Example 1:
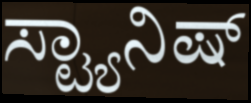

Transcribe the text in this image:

ಸ್ಟ್ಯಾನಿಷ್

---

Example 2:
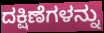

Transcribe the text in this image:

ದಕ್ಷಿಣೆಗಳನ್ನು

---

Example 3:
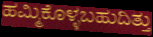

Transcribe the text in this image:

ಹಮ್ಮಿಕೊಳ್ಳಬಹುದಿತ್ತು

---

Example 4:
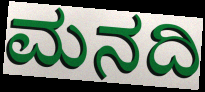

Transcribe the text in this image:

ಮನದಿ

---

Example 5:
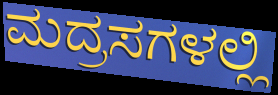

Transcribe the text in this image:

ಮದ್ರಸಗಳಲ್ಲಿ